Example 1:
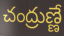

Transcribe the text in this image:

చంద్రుణ్ణే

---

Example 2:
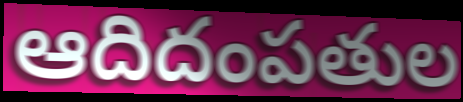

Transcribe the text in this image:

ఆదిదంపతుల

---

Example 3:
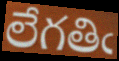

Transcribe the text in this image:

లేగతిఁ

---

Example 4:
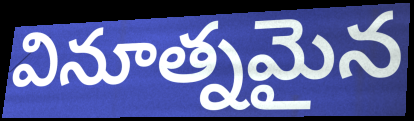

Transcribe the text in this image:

వినూత్నమైన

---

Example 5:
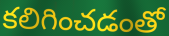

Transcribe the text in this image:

కలిగించడంతో